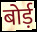
बोर्ड़